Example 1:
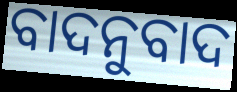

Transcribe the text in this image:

ବାଦନୁବାଦ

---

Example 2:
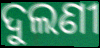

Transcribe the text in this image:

ଦୁଲଣୀ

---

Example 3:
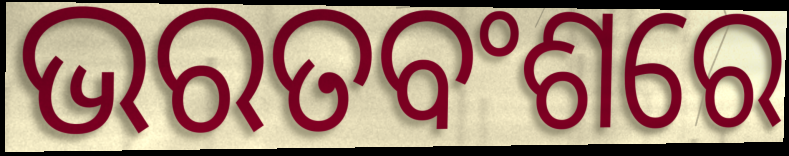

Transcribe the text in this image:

ଭରତବଂଶରେ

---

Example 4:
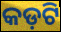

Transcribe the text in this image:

କଡ଼ଟି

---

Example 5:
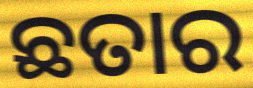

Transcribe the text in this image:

ଛତାର